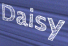
Daisy